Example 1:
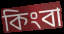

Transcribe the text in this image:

কিংবা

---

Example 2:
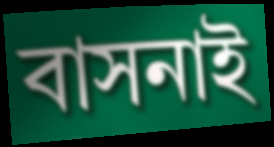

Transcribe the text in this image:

বাসনাই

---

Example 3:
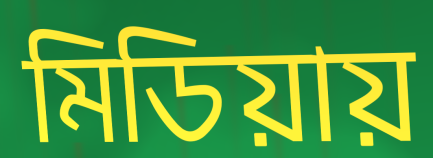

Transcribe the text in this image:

মিডিয়ায়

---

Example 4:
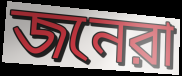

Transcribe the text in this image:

জনেরা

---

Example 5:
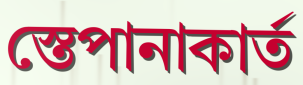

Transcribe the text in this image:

স্তেপানাকার্ত